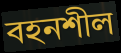
বহনশীল